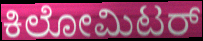
ಕಿಲೋಮಿಟರ್